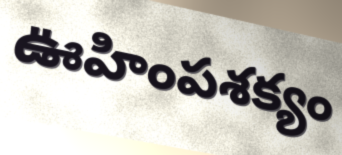
ఊహింపశక్యం